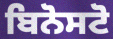
ਬਿਨੋਸਟੋ